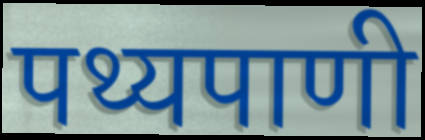
पथ्यपाणी